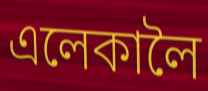
এলেকালৈ